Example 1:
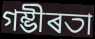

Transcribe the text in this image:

গম্ভীৰতা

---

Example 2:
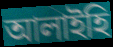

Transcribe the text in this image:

আলাইহি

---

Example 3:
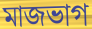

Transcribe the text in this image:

মাজভাগ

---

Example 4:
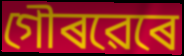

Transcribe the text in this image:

গৌৰৱেৰে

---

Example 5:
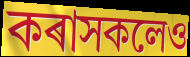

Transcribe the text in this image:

কৰাসকলেও